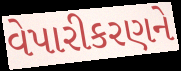
વેપારીકરણને